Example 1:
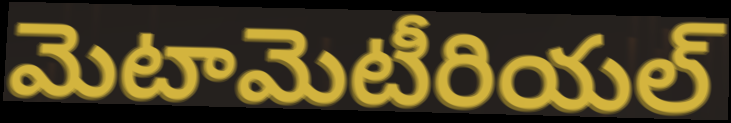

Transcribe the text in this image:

మెటామెటీరియల్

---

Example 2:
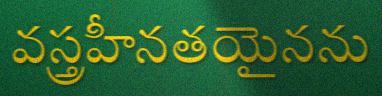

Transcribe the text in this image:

వస్త్రహీనతయైనను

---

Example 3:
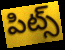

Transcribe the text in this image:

పిట్స్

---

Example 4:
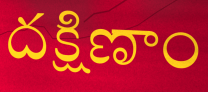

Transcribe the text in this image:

దక్షిణాం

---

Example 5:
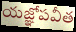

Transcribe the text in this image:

యజ్ఞోపవీత